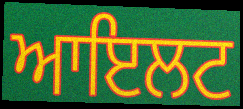
ਆਇਲਟ